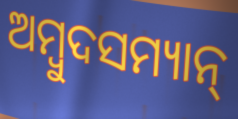
ଅମ୍ୱୁଦସମ୍ୟାନ୍